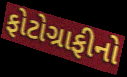
ફોટોગ્રાફીનો